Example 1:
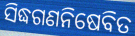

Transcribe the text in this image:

ସିଦ୍ଧଗଣନିଷେବିତ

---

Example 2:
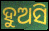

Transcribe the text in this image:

ହୁଅସି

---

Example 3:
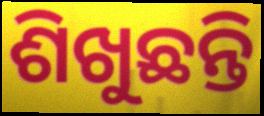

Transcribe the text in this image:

ଶିଖୁଛନ୍ତି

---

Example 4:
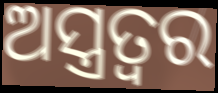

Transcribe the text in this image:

ଅସ୍ତ୍ରତ୍ୱର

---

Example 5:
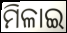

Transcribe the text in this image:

ମିଳାଇ